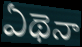
ఏథెనా